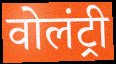
वोलंट्री